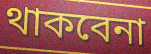
থাকবেনা